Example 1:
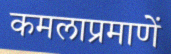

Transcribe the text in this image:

कमलाप्रमाणें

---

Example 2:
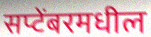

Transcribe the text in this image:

सप्टेंबरमधील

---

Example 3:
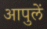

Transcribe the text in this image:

आपुलें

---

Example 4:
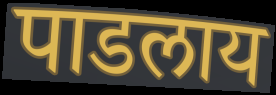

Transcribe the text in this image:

पाडलाय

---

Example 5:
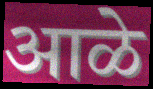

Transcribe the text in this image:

आळे